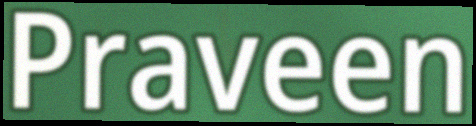
Praveen